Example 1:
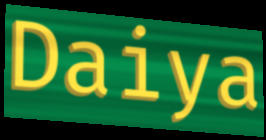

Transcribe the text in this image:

Daiya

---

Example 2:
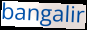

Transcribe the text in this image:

bangalir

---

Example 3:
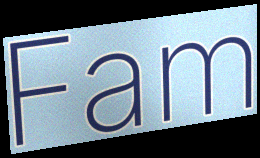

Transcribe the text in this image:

Fam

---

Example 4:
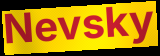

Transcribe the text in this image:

Nevsky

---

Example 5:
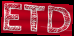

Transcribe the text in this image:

ETD